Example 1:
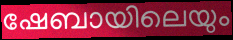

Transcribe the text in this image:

ഷേബായിലെയും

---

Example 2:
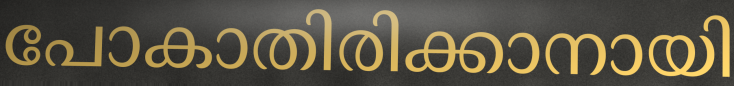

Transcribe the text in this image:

പോകാതിരിക്കാനായി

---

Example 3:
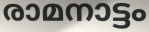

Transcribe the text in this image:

രാമനാട്ടം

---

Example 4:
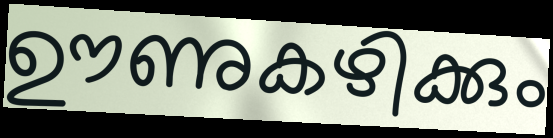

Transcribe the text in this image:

ഊണുകഴിക്കും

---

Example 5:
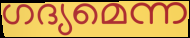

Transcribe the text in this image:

ഗദ്യമെന്ന